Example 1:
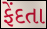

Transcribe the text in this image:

ફેંદતા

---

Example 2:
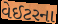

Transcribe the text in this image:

વેઈટરના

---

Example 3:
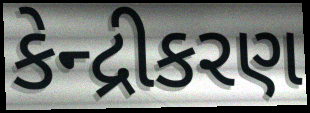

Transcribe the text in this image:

કેન્દ્રીકરણ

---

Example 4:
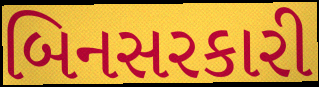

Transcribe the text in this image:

બિનસરકારી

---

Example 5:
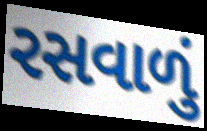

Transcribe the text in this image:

રસવાળું